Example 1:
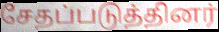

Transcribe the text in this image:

சேதப்படுத்தினர்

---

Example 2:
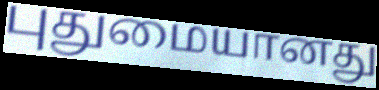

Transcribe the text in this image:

புதுமையானது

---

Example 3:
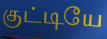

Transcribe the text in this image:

குட்டியே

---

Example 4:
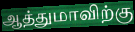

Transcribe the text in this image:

ஆத்துமாவிற்கு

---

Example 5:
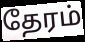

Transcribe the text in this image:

தேரம்